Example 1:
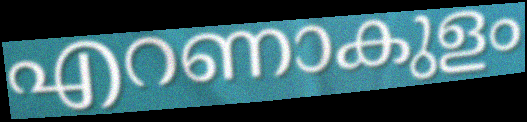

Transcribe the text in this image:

എറണാകുളം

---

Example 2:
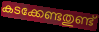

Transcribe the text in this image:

കടക്കേണ്ടതുണ്ട്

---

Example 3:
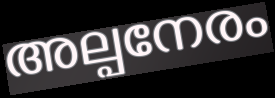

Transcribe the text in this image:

അല്പനേരം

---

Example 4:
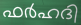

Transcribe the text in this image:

ഫർഹദി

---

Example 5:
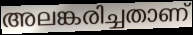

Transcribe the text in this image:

അലങ്കരിച്ചതാണ്